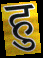
हु